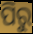
ପିରୁ